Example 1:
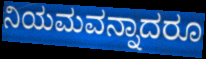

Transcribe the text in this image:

ನಿಯಮವನ್ನಾದರೂ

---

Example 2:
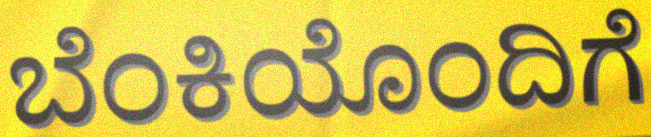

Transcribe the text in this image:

ಬೆಂಕಿಯೊಂದಿಗೆ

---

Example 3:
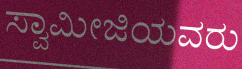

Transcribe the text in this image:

ಸ್ವಾಮೀಜಿಯವರು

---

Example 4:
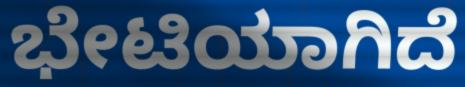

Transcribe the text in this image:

ಭೇಟಿಯಾಗಿದೆ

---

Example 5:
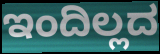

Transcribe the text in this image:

ಇಂದಿಲ್ಲದ